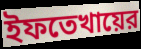
ইফতেখায়ের